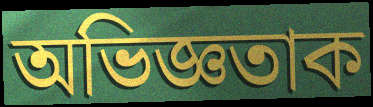
অভিজ্ঞতাক